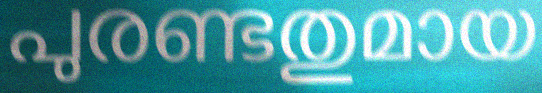
പുരണ്ടതുമായ